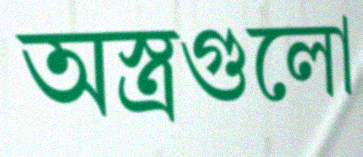
অস্ত্রগুলো